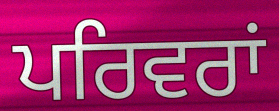
ਪਰਿਵਰਾਂ